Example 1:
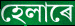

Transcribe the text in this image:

হেলাৰে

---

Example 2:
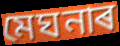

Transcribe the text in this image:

মেঘনাৰ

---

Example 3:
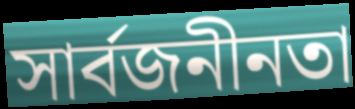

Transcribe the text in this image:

সাৰ্বজনীনতা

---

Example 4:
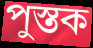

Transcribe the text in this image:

পুস্তক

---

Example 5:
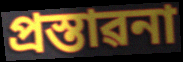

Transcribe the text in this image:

প্ৰস্তাৱনা